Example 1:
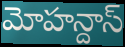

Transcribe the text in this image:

మోహన్దాస్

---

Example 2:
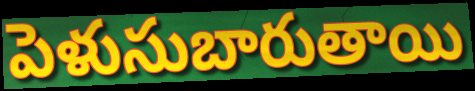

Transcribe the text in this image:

పెళుసుబారుతాయి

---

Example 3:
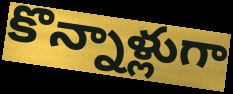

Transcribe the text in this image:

కొన్నాళ్లుగా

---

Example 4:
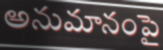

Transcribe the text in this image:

అనుమానంపై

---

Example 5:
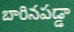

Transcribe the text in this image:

బారినపడ్డా